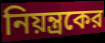
নিয়ন্ত্রকের